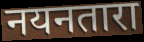
नयनतारा